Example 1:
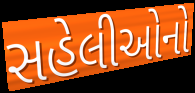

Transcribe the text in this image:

સહેલીઓનો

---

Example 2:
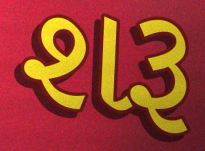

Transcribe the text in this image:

શરૂ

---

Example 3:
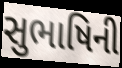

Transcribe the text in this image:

સુભાષિની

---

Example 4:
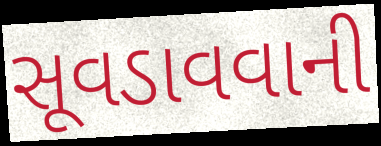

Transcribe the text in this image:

સૂવડાવવાની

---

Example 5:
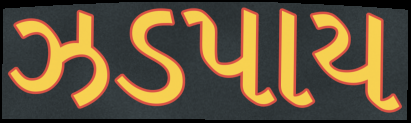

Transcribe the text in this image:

ઝડપાય